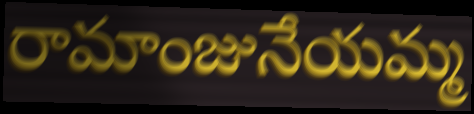
రామాంజునేయమ్మ